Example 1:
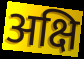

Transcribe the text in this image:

अक्षि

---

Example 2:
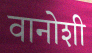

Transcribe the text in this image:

वानोशी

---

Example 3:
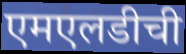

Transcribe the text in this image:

एमएलडीची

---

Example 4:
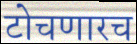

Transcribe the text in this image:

टोचणारच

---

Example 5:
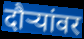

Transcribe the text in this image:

दौऱ्यांवर